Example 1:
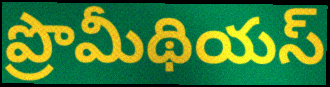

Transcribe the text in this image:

ప్రొమీథియస్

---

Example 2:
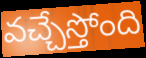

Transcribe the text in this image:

వచ్చేస్తోంది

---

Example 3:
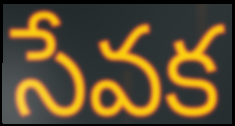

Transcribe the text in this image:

సేవక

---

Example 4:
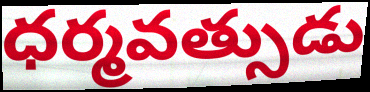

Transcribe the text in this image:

ధర్మవత్సుడు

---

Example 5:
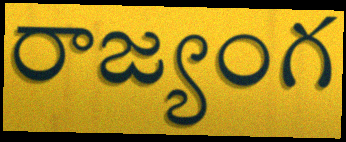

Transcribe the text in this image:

రాజ్యంగ